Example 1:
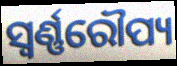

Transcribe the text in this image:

ସ୍ୱର୍ଣ୍ଣରୌପ୍ୟ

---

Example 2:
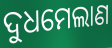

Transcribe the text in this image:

ଦୁଧମେଲାଣ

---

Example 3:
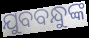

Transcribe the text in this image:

ଯୁବବନ୍ଧୁଙ୍କ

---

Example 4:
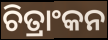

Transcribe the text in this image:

ଚିତ୍ରାଂକନ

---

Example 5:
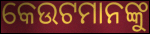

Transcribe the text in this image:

କେଉଟମାନଙ୍କୁ